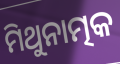
ମିଥୁନାତ୍ମକ